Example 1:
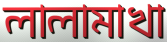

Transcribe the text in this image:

লালামাখা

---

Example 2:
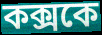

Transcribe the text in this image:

কক্সকে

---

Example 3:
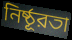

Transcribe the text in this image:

নিষ্ঠূরতা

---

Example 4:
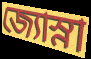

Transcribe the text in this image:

জ্যোস্না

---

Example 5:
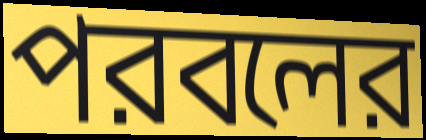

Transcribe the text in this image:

পরবলের